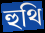
হুথি